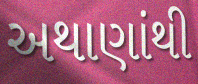
અથાણાંથી